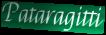
Pataragitti